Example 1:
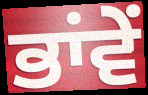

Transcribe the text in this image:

ਭਾਂਵੇਂ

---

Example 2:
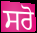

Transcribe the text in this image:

ਸਰੋ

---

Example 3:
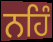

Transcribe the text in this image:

ਨਹਿੰ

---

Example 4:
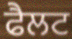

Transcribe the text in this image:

ਫੈਲਟ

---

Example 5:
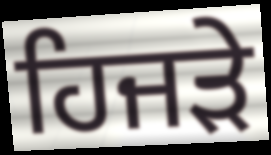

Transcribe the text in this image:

ਹਿਜੜੇ